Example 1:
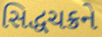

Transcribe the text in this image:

સિદ્ધચક્રને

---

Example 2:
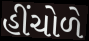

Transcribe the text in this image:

હીંચોળે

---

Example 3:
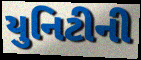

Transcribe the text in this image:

યુનિટીની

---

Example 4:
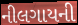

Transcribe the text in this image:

નીલગાયની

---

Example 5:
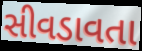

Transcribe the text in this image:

સીવડાવતા